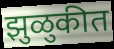
झुळुकीत